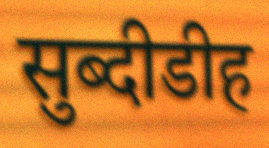
सुब्दीडीह